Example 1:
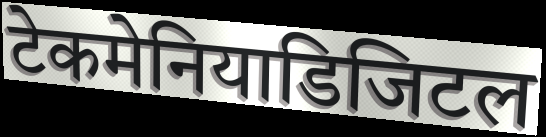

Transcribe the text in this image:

टेकमेनियाडिजिटल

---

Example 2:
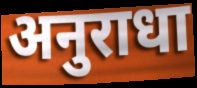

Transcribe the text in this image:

अनुराधा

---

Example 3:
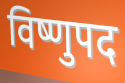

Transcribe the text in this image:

विष्णुपद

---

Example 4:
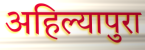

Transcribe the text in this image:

अहिल्यापुरा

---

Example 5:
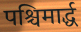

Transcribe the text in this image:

पश्चिमार्द्ध